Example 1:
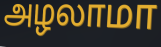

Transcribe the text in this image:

அழலாமா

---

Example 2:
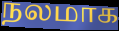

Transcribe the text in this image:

நலமாக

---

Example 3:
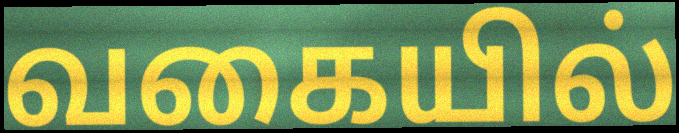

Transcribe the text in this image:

வகையில்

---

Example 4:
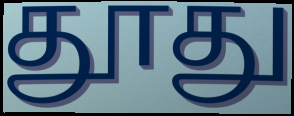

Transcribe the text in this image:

தூது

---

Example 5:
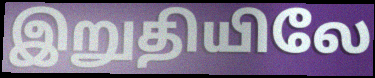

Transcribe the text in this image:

இறுதியிலே